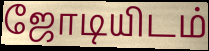
ஜோடியிடம்